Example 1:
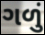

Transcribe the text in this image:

ગળું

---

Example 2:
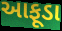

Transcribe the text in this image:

આફૂડા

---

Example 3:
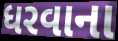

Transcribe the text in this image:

ધરવાના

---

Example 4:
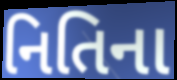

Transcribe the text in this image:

નિતિના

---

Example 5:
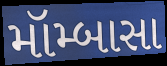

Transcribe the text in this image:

મૉમ્બાસા